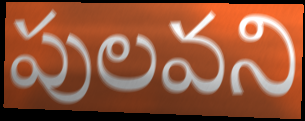
పులవని